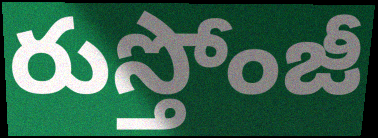
రుస్తోంజీ